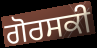
ਗੋਰਸਕੀ